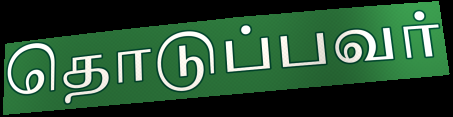
தொடுப்பவர்